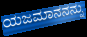
ಯಜಮಾನನನ್ನು